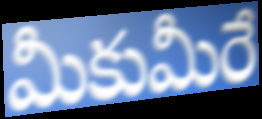
మీకుమీరే